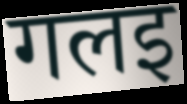
गलइ